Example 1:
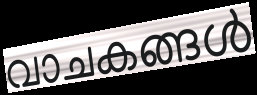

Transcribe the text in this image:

വാചകങ്ങൾ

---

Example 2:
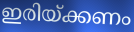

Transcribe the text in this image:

ഇരിയ്ക്കണം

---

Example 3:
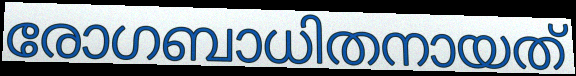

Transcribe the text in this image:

രോഗബാധിതനായത്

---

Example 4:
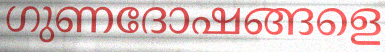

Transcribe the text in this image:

ഗുണദോഷങ്ങളെ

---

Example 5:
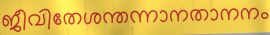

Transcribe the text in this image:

ജീവിതേശന്തന്നാനതാനനം